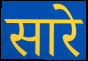
सारे